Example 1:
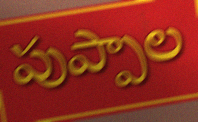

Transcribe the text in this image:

పుప్పాల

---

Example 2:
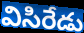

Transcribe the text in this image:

విసిరేడు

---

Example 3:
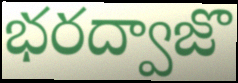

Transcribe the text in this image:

భరద్వాజొ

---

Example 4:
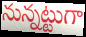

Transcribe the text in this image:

నున్నట్టుగా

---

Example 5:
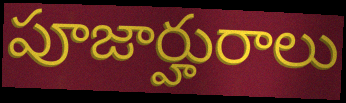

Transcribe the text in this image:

పూజార్హురాలు